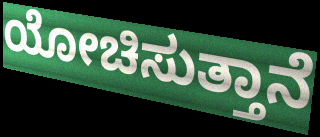
ಯೋಚಿಸುತ್ತಾನೆ